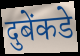
दुबेंकडे